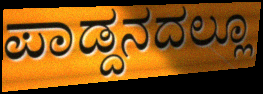
ಪಾಡ್ದನದಲ್ಲೂ